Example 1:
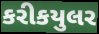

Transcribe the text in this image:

કરીકયુલર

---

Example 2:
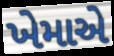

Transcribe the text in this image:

ખેમાએ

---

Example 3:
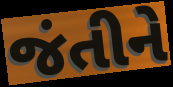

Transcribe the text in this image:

જંતીને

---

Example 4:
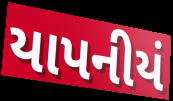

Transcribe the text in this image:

યાપનીયં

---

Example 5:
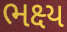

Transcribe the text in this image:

ભક્ષ્ય